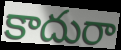
కాదురా